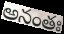
అనంతః